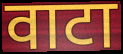
वाटा